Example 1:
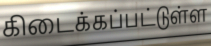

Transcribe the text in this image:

கிடைக்கப்பட்டுள்ள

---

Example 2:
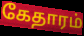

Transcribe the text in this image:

கேதாரம்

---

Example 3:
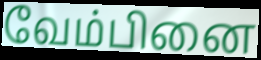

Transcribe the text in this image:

வேம்பினை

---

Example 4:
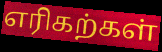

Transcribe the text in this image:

எரிகற்கள்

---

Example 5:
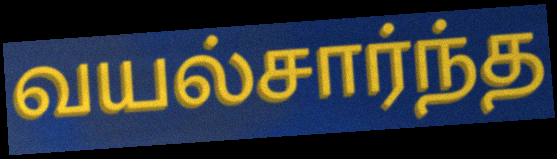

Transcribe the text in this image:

வயல்சார்ந்த